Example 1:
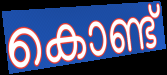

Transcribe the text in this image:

കൊണ്ട്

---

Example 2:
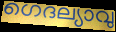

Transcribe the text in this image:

ഗെദല്യാവു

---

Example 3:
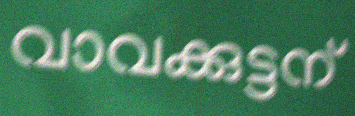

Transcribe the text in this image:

വാവക്കുട്ടന്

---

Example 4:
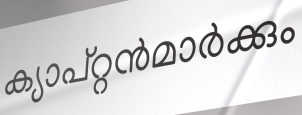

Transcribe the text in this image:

ക്യാപ്റ്റൻമാർക്കും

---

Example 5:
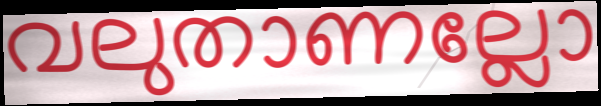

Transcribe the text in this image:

വലുതാണല്ലോ